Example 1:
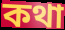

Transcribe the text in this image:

কথা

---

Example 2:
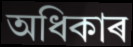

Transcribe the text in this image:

অধিকাৰ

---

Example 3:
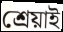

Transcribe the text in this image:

শ্ৰেয়াই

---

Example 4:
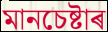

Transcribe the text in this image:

মানচেষ্টাৰ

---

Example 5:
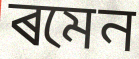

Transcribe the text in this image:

ৰমেন